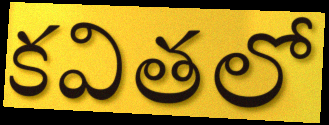
కవితలో